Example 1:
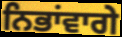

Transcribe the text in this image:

ਨਿਭਾਂਵਾਗੇ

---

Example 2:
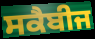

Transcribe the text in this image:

ਸਕੈਬੀਜ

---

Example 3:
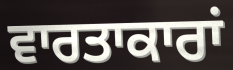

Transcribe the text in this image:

ਵਾਰਤਾਕਾਰਾਂ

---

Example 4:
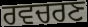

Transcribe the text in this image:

ਰਵਚਰਣ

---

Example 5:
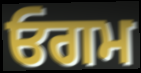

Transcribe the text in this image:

ਓਗਮ